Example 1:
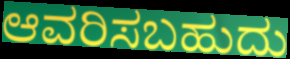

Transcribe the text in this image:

ಆವರಿಸಬಹುದು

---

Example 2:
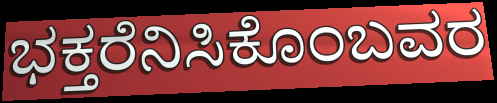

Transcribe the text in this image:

ಭಕ್ತರೆನಿಸಿಕೊಂಬವರ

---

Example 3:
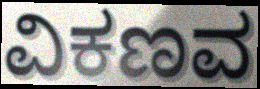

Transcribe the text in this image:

ವಿಕಣವ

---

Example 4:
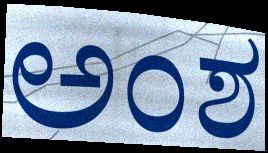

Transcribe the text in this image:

ಅಂಶ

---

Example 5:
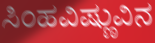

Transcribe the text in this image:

ಸಿಂಹವಿಷ್ಣುವಿನ